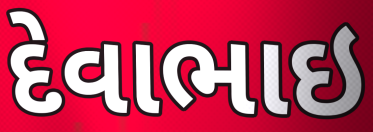
દેવાભાઇ